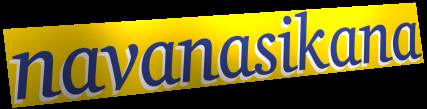
navanasikana